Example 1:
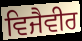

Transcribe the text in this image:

ਵਿਜੈਵੀਰ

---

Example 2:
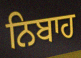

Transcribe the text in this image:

ਨਿਬਾਹ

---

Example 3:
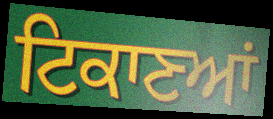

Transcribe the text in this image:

ਟਿਕਾਣਆਂ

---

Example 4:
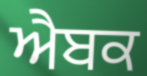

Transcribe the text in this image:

ਐਬਕ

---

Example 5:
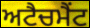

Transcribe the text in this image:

ਅਟੈਚਮੈਂਟ